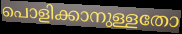
പൊളിക്കാനുള്ളതോ